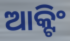
ଆକ୍ଟିଂ